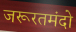
जरूरतमंदो